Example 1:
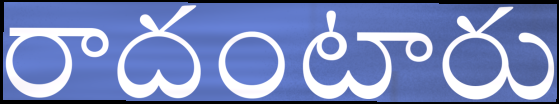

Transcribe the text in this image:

రాదంటారు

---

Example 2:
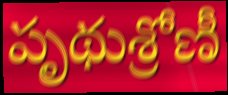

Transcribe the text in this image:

పృథుశ్రోణీ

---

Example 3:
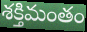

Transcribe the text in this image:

శక్తిమంతం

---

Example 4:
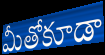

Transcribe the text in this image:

మీతోకూడా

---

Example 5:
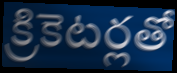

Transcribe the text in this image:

క్రికెటర్లతో